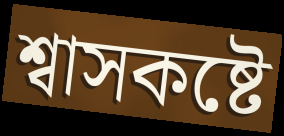
শ্বাসকষ্টে